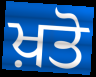
ਖ਼ਤੋ